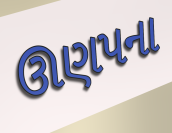
ઊણપના